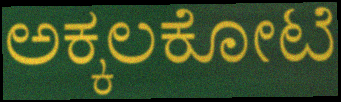
ಅಕ್ಕಲಕೋಟೆ